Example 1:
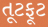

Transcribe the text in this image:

તૂટફૂટ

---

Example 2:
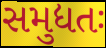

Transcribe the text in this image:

સમુદ્યતઃ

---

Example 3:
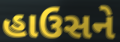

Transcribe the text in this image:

હાઉસને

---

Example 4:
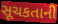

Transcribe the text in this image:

સૂચકતાની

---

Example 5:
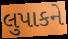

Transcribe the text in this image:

લુપાકને